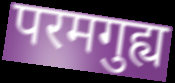
परमगुह्य